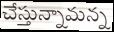
చేస్తున్నామన్న